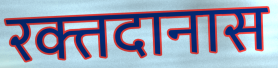
रक्तदानास